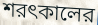
শরৎকালের